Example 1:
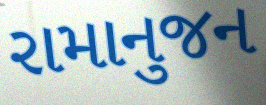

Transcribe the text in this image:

રામાનુજન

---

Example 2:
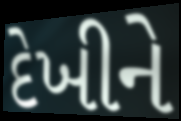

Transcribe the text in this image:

દેખીને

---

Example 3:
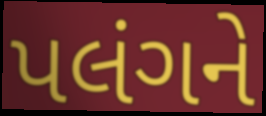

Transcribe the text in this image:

પલંગને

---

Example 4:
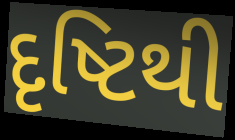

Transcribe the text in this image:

દૃષ્ટિથી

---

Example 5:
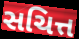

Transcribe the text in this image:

સચિત્ત